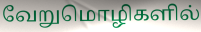
வேறுமொழிகளில்